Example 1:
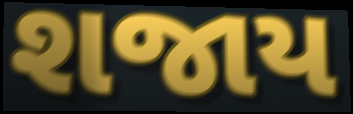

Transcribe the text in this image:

શજાય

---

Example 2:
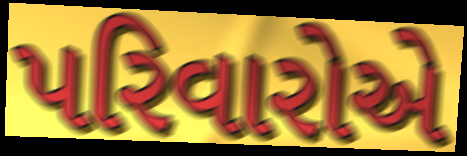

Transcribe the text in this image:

પરિવારોએ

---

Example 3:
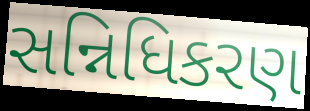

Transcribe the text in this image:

સન્નિધિકરણ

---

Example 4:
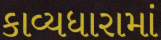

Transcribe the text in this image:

કાવ્યધારામાં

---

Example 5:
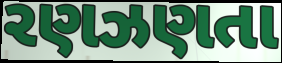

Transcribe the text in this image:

રણઝણતા